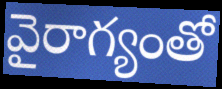
వైరాగ్యంతో